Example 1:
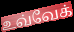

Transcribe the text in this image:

உவ்வேக்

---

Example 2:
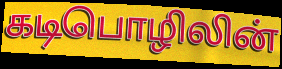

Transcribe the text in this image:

கடிபொழிலின்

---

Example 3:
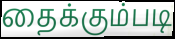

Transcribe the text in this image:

தைக்கும்படி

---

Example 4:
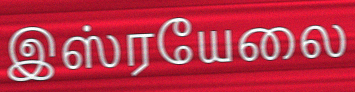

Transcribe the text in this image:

இஸ்ரயேலை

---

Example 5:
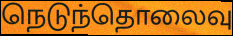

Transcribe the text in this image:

நெடுந்தொலைவு